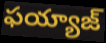
ఫయ్యాజ్